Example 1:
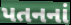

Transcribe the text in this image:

પતનનાં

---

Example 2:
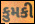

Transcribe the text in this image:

કુમકી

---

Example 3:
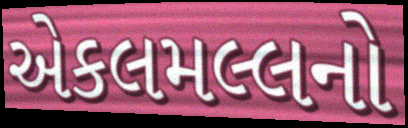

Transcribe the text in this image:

એકલમલ્લનો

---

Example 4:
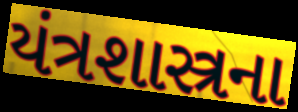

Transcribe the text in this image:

યંત્રશાસ્ત્રના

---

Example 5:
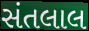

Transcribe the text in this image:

સંતલાલ